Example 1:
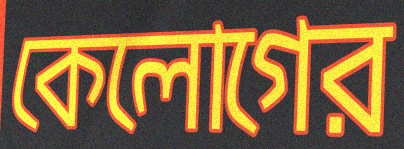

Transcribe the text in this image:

কেলোগের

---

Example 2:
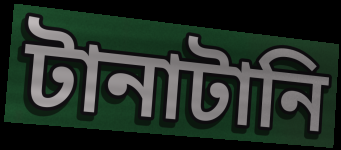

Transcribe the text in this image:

টানাটানি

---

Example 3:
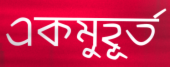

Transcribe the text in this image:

একমুহূর্ত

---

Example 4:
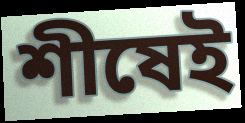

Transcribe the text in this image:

শীষেই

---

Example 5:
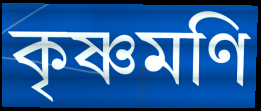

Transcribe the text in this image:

কৃষ্ণমণি